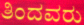
ತಿಂದವರು